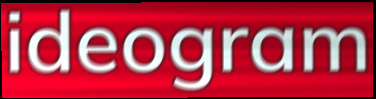
ideogram